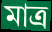
মাত্র